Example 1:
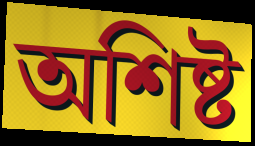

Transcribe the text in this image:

অশিষ্ট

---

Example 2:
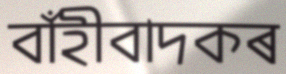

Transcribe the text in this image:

বাঁহীবাদকৰ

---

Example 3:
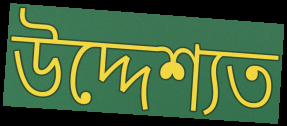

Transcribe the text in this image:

উদ্দেশ্যত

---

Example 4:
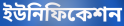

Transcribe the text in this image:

ইউনিফিকেশন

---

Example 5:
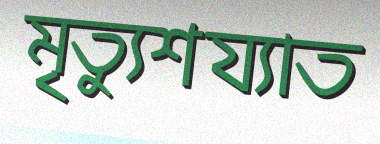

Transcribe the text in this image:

মৃত্যুশয্যাত